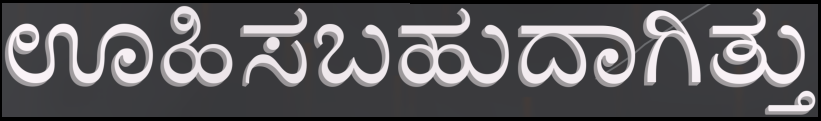
ಊಹಿಸಬಹುದಾಗಿತ್ತು